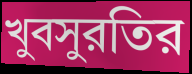
খুবসুরতির